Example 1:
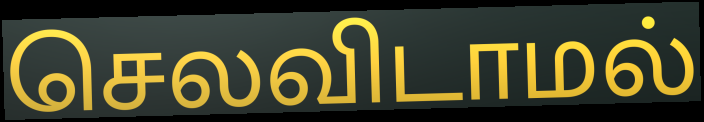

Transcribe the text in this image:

செலவிடாமல்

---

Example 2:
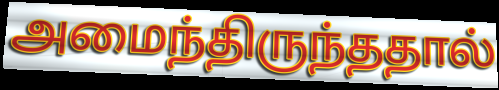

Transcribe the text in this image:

அமைந்திருந்ததால்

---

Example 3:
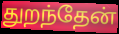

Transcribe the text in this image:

துறந்தேன்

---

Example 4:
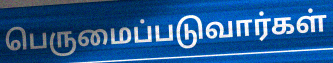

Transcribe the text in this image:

பெருமைப்படுவார்கள்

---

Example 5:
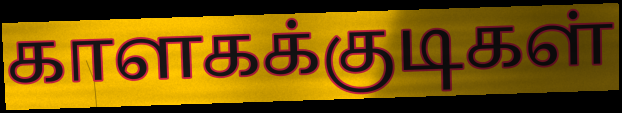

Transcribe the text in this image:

காளகக்குடிகள்